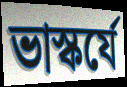
ভাস্কর্যে